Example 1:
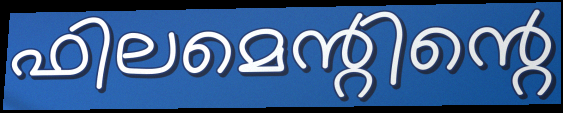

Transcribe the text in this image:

ഫിലമെന്റിന്റെ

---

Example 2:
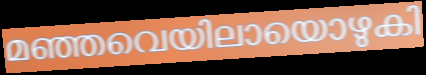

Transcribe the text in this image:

മഞ്ഞവെയിലായൊഴുകി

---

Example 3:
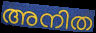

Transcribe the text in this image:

അനിത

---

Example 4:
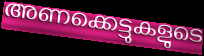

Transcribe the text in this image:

അണക്കെട്ടുകളുടെ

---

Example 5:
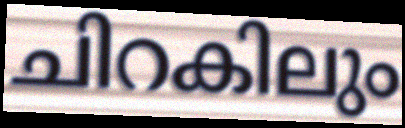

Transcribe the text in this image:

ചിറകിലും